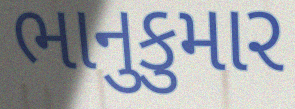
ભાનુકુમાર